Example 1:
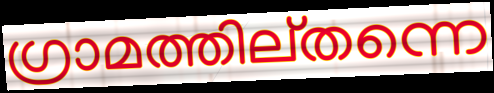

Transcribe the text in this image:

ഗ്രാമത്തില്തന്നെ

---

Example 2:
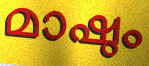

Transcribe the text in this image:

മാഷും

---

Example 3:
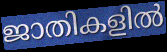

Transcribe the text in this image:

ജാതികളിൽ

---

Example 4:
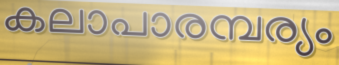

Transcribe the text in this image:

കലാപാരമ്പര്യം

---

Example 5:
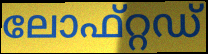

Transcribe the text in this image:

ലോഫ്റ്റഡ്